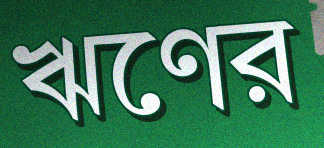
ঋণের